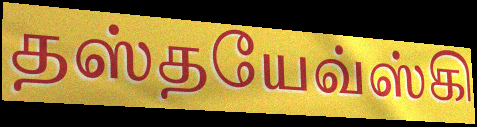
தஸ்தயேவ்ஸ்கி